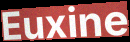
Euxine